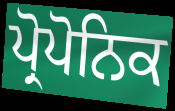
ਪ੍ਰੋਪੋਨਿਕ